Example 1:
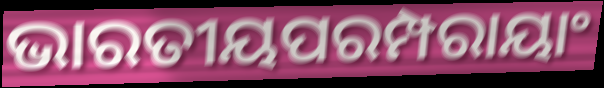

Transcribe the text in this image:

ଭାରତୀୟପରମ୍ପରାୟାଂ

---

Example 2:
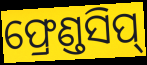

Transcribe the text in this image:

ଫ୍ରେଣ୍ଡସିପ୍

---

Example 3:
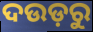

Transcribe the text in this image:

ଦଉଡ଼ରୁ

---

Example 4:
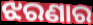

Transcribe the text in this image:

ଝରଣାର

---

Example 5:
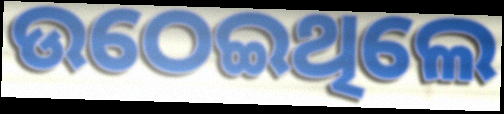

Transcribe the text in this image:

ଉଠେଇଥିଲେ